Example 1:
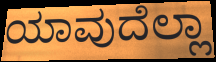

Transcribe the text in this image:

ಯಾವುದೆಲ್ಲಾ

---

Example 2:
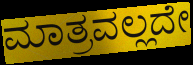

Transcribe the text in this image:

ಮಾತ್ರವಲ್ಲದೇ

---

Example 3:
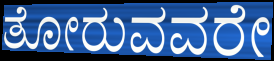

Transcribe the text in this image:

ತೋರುವವರೇ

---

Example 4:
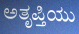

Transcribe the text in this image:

ಅತೃಪ್ತಿಯು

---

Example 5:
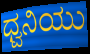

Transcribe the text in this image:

ಧ್ವನಿಯು